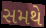
સમથે